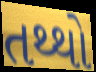
તથ્થો